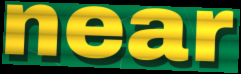
near